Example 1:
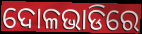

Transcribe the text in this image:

ଦୋଳଭାଡିରେ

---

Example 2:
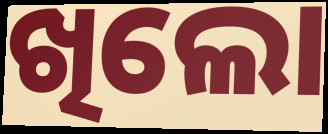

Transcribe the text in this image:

ଖିଲୋ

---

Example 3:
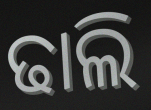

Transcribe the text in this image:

ଢାଲି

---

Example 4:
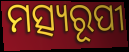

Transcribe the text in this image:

ମତ୍ସ୍ୟରୂପୀ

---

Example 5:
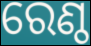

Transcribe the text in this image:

ରେଣ୍ଠ